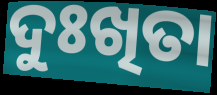
ଦୁଃଖିତା